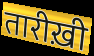
तारीख़ी